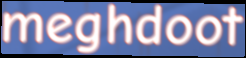
meghdoot